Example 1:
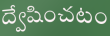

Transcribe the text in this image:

ద్వేషించటం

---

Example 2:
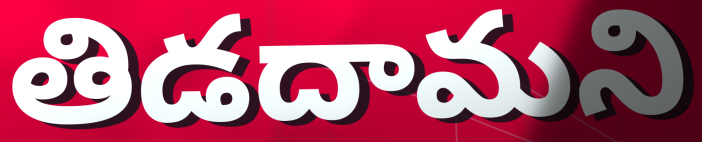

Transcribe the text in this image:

తిడదామని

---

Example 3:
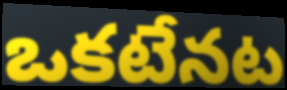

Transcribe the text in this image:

ఒకటేనట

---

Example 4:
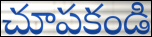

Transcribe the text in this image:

చూపకండి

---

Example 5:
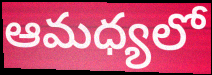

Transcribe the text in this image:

ఆమధ్యలో